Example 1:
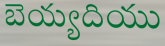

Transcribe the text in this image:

బెయ్యదియు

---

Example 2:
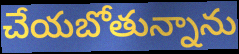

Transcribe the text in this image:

చేయబోతున్నాను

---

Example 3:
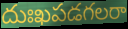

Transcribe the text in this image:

దుఃఖపడగలరా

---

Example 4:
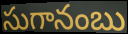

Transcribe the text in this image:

సుగానంబు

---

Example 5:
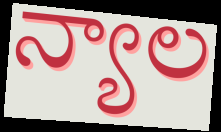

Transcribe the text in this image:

న్యాల